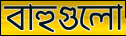
বাহুগুলো